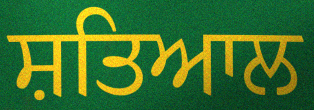
ਸ਼ਤਿਆਲ